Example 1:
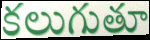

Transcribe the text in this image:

కలుగుతూ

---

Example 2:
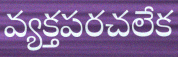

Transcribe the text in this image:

వ్యక్తపరచలేక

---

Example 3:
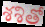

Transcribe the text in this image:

శశితో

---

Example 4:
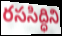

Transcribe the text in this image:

రససిద్ధిని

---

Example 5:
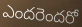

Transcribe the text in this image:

ఎందరెందరో